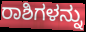
ರಾಶಿಗಳನ್ನು